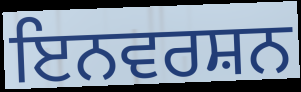
ਇਨਵਰਸ਼ਨ